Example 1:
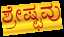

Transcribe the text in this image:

ಶ್ರೇಷ್ಟವು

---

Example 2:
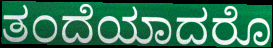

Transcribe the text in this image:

ತಂದೆಯಾದರೊ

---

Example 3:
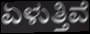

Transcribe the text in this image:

ಏಳುತ್ತಿವೆ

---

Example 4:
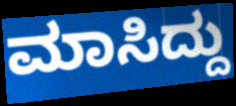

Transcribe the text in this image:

ಮಾಸಿದ್ದು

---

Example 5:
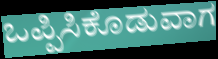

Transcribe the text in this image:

ಒಪ್ಪಿಸಿಕೊಡುವಾಗ